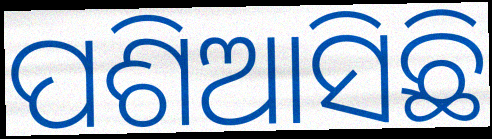
ପଶିଆସିଛି